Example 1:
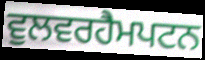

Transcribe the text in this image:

ਵੁਲਵਰਹੈਮਪਟਨ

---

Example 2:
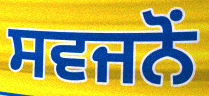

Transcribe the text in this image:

ਸਵਜਨੋਂ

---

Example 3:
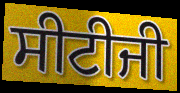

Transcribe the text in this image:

ਸੀਟੀਜੀ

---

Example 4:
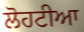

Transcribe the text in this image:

ਲੋਹਟੀਆ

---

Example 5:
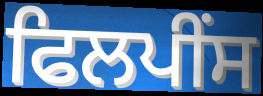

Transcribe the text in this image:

ਫਿਲਪੀਂਸ